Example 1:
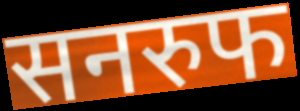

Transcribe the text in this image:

सनरुफ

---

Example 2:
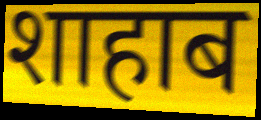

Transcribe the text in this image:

शाहाब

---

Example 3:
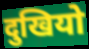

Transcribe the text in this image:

दुखियो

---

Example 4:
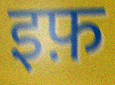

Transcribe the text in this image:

इफ़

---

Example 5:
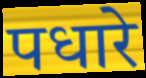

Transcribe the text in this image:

पधारे